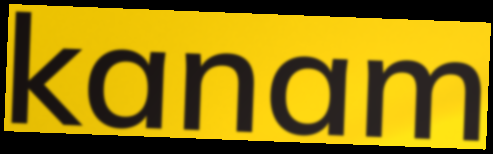
kanam